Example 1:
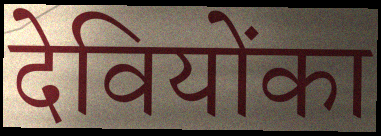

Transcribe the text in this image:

देवियोंका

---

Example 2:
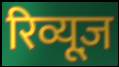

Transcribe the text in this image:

रिव्यूज़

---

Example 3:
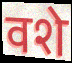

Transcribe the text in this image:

वशे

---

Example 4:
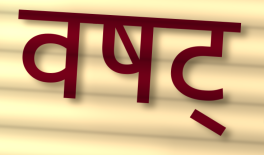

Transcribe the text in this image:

वषट्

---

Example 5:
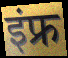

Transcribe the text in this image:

इंफ्र